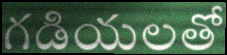
గడియలతో